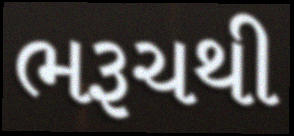
ભરૂચથી